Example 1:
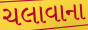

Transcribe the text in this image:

ચલાવાના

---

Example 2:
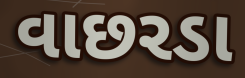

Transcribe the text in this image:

વાછરડા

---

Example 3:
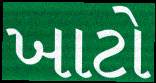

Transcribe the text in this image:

ખાટો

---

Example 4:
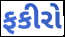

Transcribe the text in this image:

ફકીરો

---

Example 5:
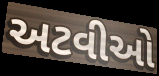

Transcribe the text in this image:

અટવીઓ